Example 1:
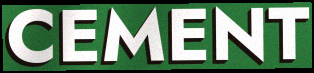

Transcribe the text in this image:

CEMENT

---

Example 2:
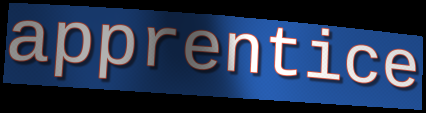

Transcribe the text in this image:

apprentice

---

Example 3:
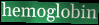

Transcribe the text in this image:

hemoglobin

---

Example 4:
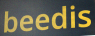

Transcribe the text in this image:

beedis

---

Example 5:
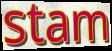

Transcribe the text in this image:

stam